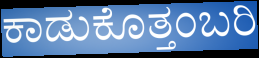
ಕಾಡುಕೊತ್ತಂಬರಿ